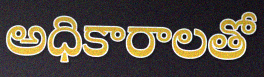
అధికారాలతో